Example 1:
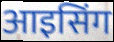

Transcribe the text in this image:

आइसिंग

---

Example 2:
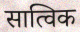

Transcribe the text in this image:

सात्विक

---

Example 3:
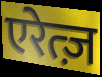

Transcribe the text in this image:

एरेत्ज़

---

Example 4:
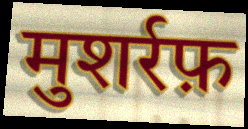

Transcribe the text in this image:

मुशर्रफ़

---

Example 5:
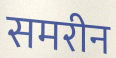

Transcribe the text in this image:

समरीन